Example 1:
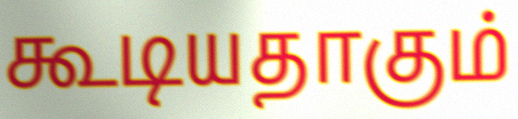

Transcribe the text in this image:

கூடியதாகும்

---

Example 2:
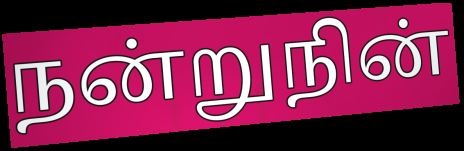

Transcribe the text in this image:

நன்றுநின்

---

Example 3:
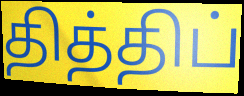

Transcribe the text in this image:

தித்திப்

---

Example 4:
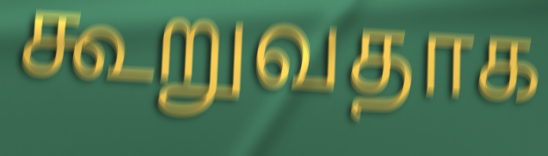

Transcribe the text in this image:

கூறுவதாக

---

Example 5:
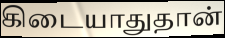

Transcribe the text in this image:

கிடையாதுதான்